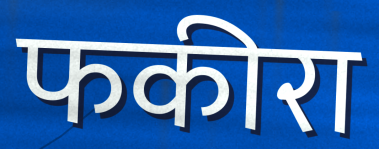
फकीरा